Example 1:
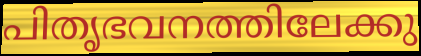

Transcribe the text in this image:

പിതൃഭവനത്തിലേക്കു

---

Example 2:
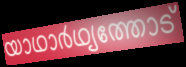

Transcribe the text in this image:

യാഥാർഥ്യത്തോട്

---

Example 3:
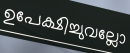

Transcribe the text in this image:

ഉപേക്ഷിച്ചുവല്ലോ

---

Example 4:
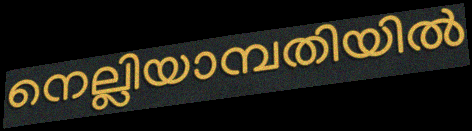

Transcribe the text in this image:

നെല്ലിയാമ്പതിയിൽ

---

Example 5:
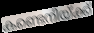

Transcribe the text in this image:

കണ്ടെനിയ്ക്ക്